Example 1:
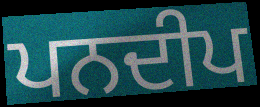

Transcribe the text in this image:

ਪਨਦੀਪ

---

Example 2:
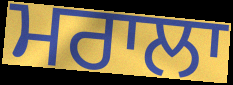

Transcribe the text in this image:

ਮਰਾਲਾ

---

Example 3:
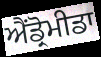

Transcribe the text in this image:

ਐਂਡ੍ਰੋਮੀਡਾ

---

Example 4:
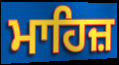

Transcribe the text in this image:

ਮਾਹਿਜ਼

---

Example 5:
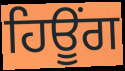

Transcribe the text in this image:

ਹਿਊੰਗ